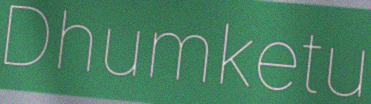
Dhumketu